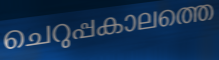
ചെറുപ്പകാലത്തെ